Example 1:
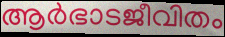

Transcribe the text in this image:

ആർഭാടജീവിതം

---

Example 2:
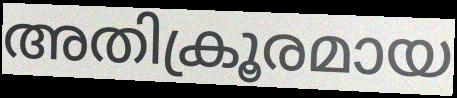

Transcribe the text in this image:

അതിക്രൂരമായ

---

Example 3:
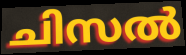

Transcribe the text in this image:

ചിസൽ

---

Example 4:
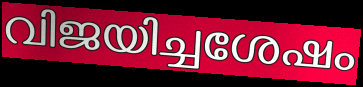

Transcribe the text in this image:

വിജയിച്ചശേഷം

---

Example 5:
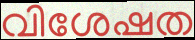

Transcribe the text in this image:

വിശേഷത